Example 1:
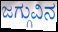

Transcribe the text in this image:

ಜಗ್ಗುವಿನ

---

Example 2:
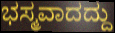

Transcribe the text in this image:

ಭಸ್ಮವಾದದ್ದು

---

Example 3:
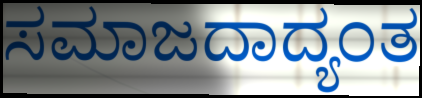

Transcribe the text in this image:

ಸಮಾಜದಾದ್ಯಂತ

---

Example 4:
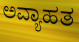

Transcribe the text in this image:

ಅವ್ಯಾಹತ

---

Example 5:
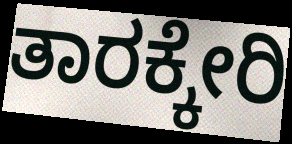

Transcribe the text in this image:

ತಾರಕ್ಕೇರಿ